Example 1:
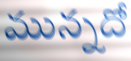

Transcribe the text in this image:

మున్నదో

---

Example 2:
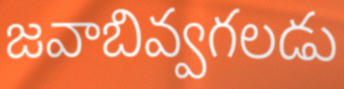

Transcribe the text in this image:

జవాబివ్వగలడు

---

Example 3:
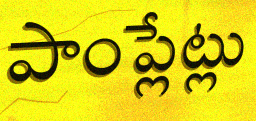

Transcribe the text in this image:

పాంప్లేట్లు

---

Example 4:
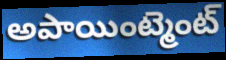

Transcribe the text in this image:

అపాయింట్మెంట్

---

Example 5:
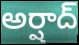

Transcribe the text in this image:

అర్షాద్